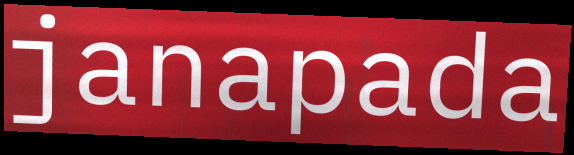
janapada